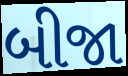
બીજા